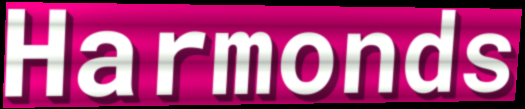
Harmonds